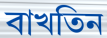
বাখতিন